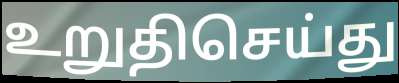
உறுதிசெய்து